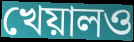
খেয়ালও